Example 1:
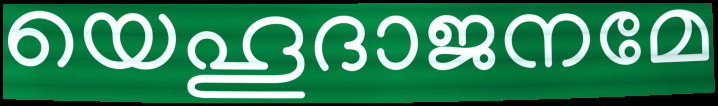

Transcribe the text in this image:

യെഹൂദാജനമേ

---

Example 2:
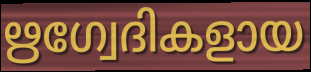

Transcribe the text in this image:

ഋഗ്വേദികളായ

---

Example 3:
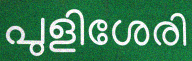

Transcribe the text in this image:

പുളിശേരി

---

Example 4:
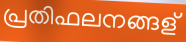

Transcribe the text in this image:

പ്രതിഫലനങ്ങള്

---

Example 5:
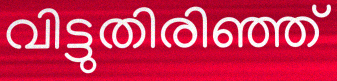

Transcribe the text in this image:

വിട്ടുതിരിഞ്ഞ്